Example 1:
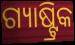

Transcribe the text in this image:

ଗ୍ୟାଷ୍ଟ୍ରିକ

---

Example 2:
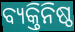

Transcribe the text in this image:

ବ୍ୟକ୍ତିନିଷ୍ଠ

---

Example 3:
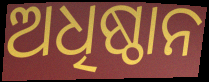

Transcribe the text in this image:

ଅଧିଷ୍ଠାନ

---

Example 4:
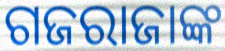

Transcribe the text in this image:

ଗଜରାଜାଙ୍କ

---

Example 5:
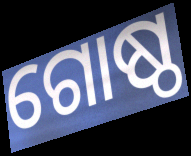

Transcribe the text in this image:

ଗୋଷ୍ଠ